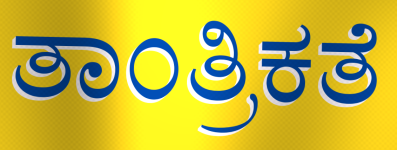
ತಾಂತ್ರಿಕತೆ